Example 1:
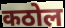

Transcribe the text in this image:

कठोल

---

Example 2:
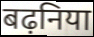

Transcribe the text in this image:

बढ़निया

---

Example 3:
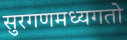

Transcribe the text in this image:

सुरगणमध्यगतो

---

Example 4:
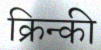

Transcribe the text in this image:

क्रिन्की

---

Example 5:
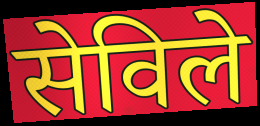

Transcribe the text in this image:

सेविले